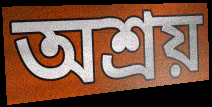
অশ্রয়